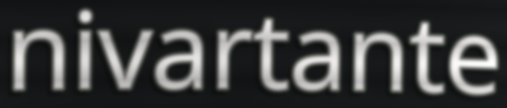
nivartante